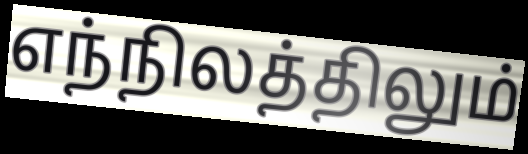
எந்நிலத்திலும்